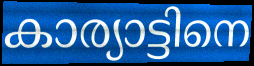
കാര്യാട്ടിനെ